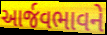
આર્જવભાવને